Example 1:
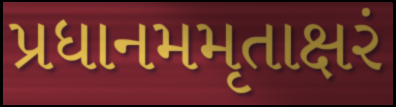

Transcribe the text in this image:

પ્રધાનમમૃતાક્ષરં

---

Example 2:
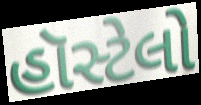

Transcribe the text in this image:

હૉસ્ટેલો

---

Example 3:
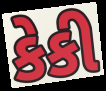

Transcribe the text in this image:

કેકી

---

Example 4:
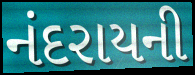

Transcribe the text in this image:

નંદરાયની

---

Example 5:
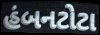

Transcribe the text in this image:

હંબનટોટા